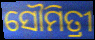
ସୌମିତ୍ରୀ